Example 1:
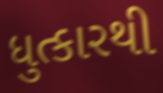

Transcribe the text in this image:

ધુત્કારથી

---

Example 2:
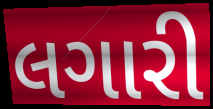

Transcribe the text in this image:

લગારી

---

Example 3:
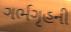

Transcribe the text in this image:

ગર્ભગૃહની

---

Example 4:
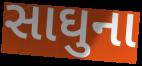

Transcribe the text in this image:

સાઘુના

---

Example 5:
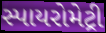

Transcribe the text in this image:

સ્પાયરોમેટ્રી